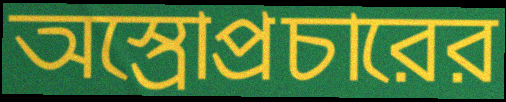
অস্ত্রোপ্রচারের